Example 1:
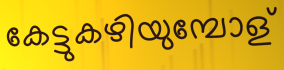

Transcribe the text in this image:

കേട്ടുകഴിയുമ്പോള്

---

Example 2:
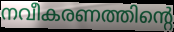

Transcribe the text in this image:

നവീകരണത്തിന്റെ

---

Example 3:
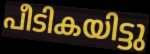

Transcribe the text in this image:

പീടികയിട്ടു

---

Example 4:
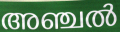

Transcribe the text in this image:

അഞ്ചൽ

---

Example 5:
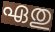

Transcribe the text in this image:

ഏതു